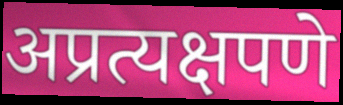
अप्रत्यक्षपणे